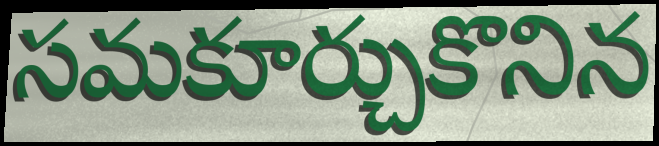
సమకూర్చుకొనిన